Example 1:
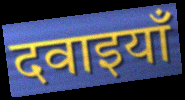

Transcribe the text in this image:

दवाइयाँ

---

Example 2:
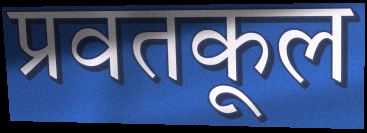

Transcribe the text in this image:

प्रवतकूल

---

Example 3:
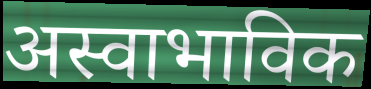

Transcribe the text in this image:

अस्वाभाविक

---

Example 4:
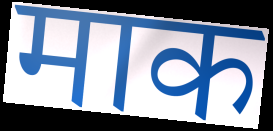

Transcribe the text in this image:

माक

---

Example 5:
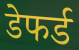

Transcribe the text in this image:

डेफर्ड